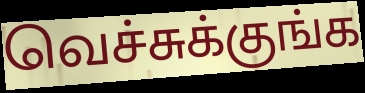
வெச்சுக்குங்க